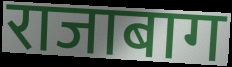
राजाबाग